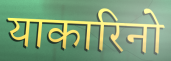
याकारिनो